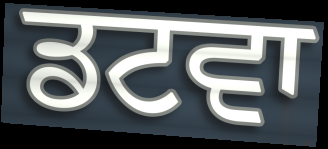
ਡਟਵਾ